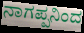
ನಾಗಪ್ಪನಿಂದ